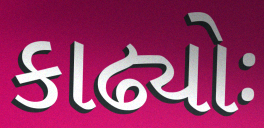
કાઢ્યોઃ